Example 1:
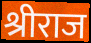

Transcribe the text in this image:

श्रीराज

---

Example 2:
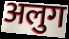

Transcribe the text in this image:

अलुग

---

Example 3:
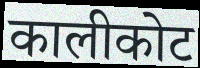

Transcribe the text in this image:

कालीकोट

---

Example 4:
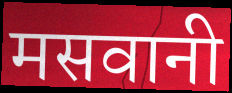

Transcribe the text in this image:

मसवानी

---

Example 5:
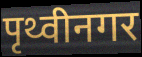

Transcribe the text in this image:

पृथ्वीनगर